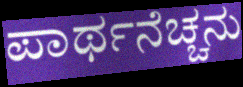
ಪಾರ್ಥನೆಚ್ಚನು